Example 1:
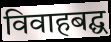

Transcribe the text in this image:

विवाहबद्घ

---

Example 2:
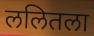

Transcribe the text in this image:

ललितला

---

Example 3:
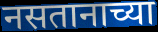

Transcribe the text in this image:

नसतानाच्या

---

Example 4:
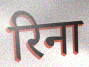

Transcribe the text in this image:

रिना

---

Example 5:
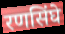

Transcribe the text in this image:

रणसिंघे